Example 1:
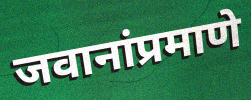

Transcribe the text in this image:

जवानांप्रमाणे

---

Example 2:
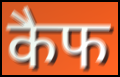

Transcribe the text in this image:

कैफ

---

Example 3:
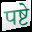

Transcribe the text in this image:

पष्टे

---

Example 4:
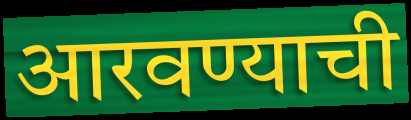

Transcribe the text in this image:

आरवण्याची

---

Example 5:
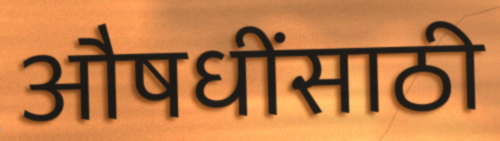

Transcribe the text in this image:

औषधींसाठी